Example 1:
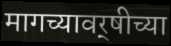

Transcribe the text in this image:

मागच्यावर्षीच्या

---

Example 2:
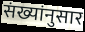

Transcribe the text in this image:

संख्यांनुसार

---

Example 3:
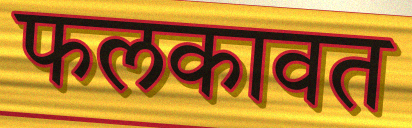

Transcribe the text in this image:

फलकावत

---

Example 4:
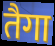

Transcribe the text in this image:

तैगा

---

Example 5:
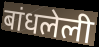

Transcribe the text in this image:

बांधलेली